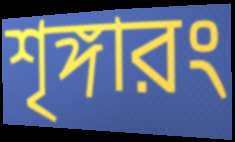
শৃঙ্গারং